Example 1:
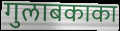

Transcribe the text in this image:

गुलाबकाका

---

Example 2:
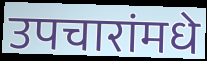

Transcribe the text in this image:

उपचारांमधे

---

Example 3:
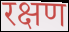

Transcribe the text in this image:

रक्षण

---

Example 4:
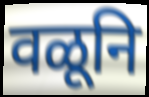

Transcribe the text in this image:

वळूनि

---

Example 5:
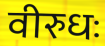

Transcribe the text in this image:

वीरुधः